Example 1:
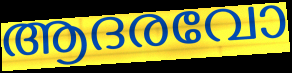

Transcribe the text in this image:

ആദരവോ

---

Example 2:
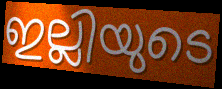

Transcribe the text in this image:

ഇല്ലിയുടെ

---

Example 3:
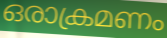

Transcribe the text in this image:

ഒരാക്രമണം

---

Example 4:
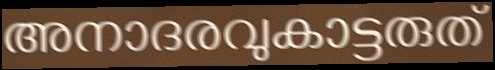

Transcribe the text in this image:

അനാദരവുകാട്ടരുത്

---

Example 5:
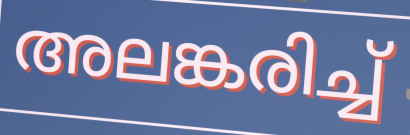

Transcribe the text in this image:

അലങ്കരിച്ച്